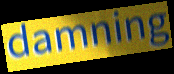
damning